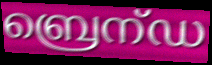
ബ്രെന്ഡ